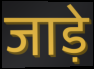
जाड़े